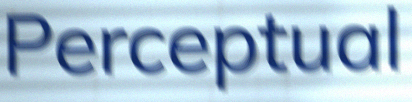
Perceptual